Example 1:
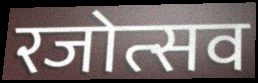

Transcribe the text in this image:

रजोत्सव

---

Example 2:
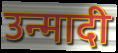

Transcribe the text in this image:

उन्मादी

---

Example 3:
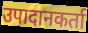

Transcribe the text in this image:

उपादानकर्ता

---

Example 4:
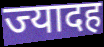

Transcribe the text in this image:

ज्यादह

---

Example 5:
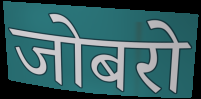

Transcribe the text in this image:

जोबरो